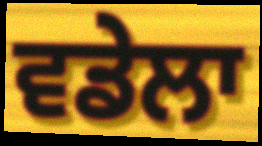
ਵਡੇਲਾ